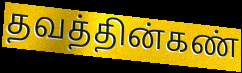
தவத்தின்கண்